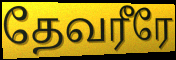
தேவரீரே